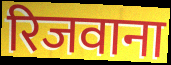
रिजवाना